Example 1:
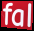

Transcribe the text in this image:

fal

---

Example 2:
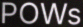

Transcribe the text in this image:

POWs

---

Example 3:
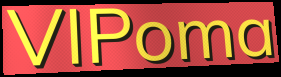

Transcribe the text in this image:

VIPoma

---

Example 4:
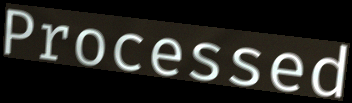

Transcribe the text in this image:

Processed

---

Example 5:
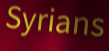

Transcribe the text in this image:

Syrians